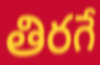
తిరగే